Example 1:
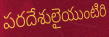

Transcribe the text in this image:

పరదేశులైయుంటిరి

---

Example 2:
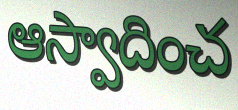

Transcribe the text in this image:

ఆస్వాదించ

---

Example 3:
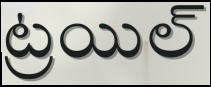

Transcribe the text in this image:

ట్రయిల్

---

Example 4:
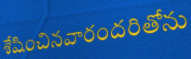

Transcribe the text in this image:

శేషించినవారందరితోను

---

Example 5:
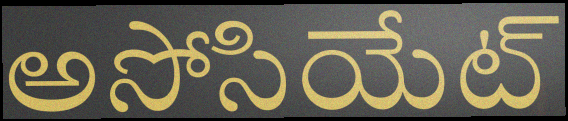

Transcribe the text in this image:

అసోసియేట్